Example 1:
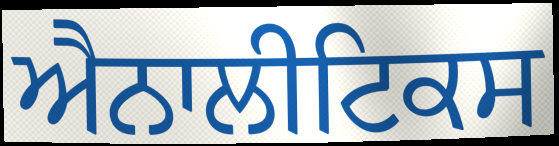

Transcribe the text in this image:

ਐਨਾਲੀਟਿਕਸ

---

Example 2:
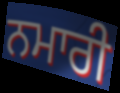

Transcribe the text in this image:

ਨਮਾਰੀ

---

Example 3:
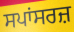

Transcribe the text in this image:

ਸਪਾਂਸਰਜ਼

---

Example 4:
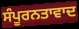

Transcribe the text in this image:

ਸੰਪੂਰਨਤਾਵਾਦ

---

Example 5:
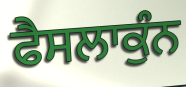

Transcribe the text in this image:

ਫੈਸਲਾਕੁੰਨ